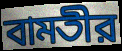
বামতীর